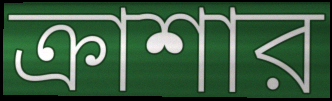
ক্রাশার